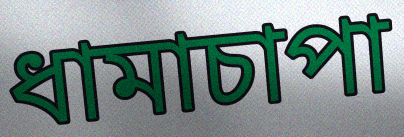
ধামাচাপা